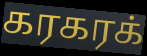
கரகரக்